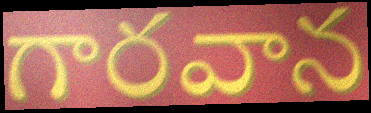
గారవాన